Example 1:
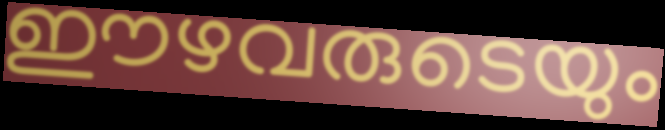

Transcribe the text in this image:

ഈഴവരുടെയും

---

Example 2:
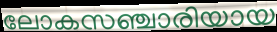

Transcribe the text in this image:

ലോകസഞ്ചാരിയായ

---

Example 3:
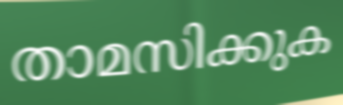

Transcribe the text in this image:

താമസിക്കുക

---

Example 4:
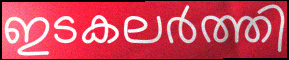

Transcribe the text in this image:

ഇടകലർത്തി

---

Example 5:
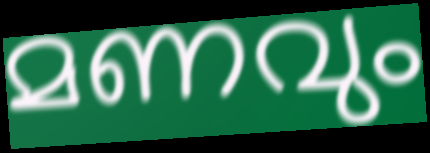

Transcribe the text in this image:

മണവും